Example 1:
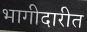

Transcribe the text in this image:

भागीदारीत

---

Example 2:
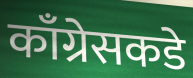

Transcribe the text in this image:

काँग्रेसकडे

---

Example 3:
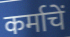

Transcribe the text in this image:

कर्माचें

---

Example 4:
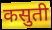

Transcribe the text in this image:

कसुती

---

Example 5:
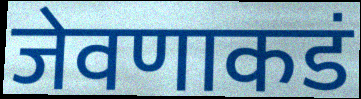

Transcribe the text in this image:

जेवणाकडं